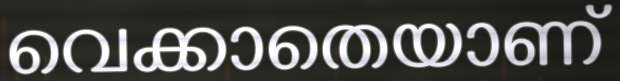
വെക്കാതെയാണ്